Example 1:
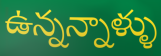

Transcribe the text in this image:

ఉన్నన్నాళ్ళు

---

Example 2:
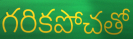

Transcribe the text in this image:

గరికపోచతో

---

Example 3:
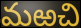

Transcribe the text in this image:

మఱచి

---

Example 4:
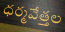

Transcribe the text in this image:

ధర్మవేత్తల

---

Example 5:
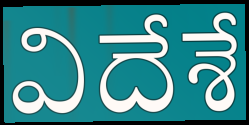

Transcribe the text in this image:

విదేశే